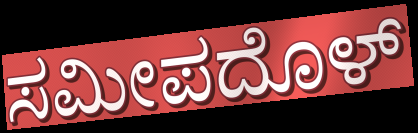
ಸಮೀಪದೊಳ್